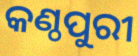
କଣ୍ଠପୁରୀ